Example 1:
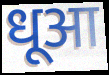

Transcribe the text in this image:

धूआ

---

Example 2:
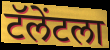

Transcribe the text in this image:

टॅलेंटला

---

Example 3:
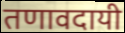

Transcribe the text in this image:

तणावदायी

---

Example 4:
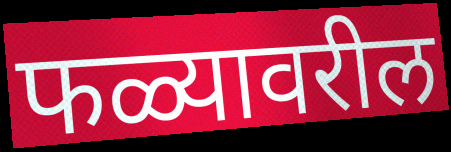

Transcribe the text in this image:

फळ्यावरील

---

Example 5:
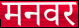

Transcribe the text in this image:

मनवर